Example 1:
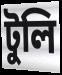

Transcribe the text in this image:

টুলি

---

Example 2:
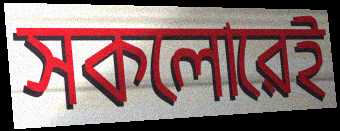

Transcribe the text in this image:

সকলোৱেই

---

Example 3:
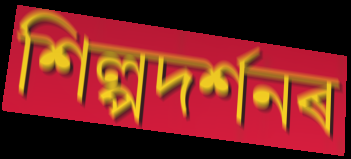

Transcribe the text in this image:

শিল্পদৰ্শনৰ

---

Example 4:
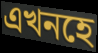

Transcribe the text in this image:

এখনহে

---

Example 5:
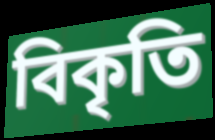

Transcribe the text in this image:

বিকৃতি